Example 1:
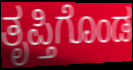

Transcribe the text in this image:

ತೃಪ್ತಿಗೊಂಡ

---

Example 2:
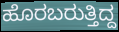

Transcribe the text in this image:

ಹೊರಬರುತ್ತಿದ್ದ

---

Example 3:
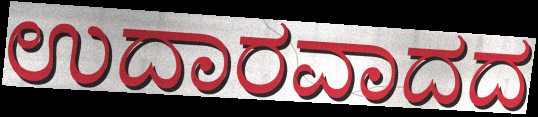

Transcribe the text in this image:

ಉದಾರವಾದದ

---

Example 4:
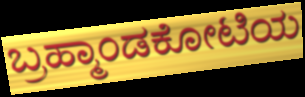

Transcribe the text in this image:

ಬ್ರಹ್ಮಾಂಡಕೋಟಿಯ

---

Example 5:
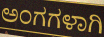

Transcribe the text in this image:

ಅಂಗಗಳಾಗಿ